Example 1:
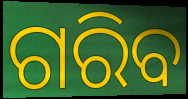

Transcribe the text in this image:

ଗରିବ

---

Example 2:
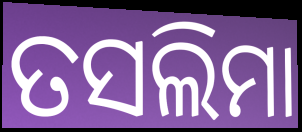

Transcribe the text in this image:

ତସଲିମା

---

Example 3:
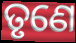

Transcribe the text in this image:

ତୃଣେ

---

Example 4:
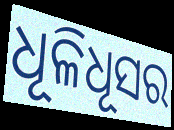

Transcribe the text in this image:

ଧୂଳିଧୂସର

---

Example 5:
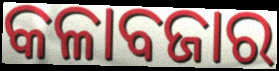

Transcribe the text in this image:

କଳାବଜାର